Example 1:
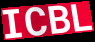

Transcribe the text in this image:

ICBL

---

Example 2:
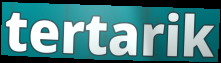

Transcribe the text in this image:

tertarik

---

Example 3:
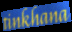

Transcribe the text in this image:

tinkhana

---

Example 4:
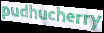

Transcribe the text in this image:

pudhucherry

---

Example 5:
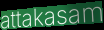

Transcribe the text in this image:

attakasam